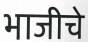
भाजीचे